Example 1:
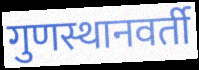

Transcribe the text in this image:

गुणस्थानवर्ती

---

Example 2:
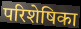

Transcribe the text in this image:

परिशेषिका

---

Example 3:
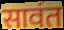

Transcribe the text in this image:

सावंत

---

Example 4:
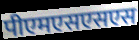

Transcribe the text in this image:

पीएमएसएसएस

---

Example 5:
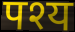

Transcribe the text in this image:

पश्य